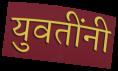
युवतींनी